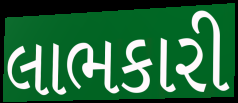
લાભકારી